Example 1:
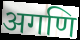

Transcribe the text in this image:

अगणि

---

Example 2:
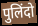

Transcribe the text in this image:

पुलिंदो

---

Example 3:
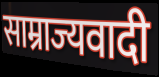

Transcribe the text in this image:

साम्राज्‍यवादी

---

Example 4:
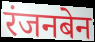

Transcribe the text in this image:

रंजनबेन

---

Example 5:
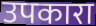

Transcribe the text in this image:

उपकारा